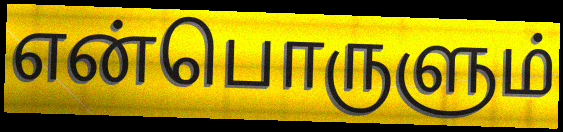
என்பொருளும்